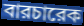
বারচারেক